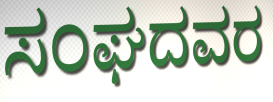
ಸಂಘದವರ